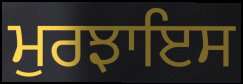
ਮੁਰਝਾਇਸ